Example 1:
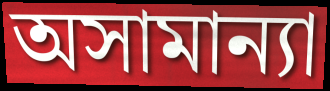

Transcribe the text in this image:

অসামান্যা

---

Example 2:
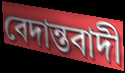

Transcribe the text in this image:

বেদান্তবাদী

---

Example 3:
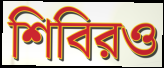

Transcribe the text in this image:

শিবিরও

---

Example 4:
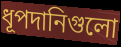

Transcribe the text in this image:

ধূপদানিগুলো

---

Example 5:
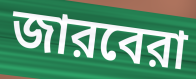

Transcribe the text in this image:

জারবেরা